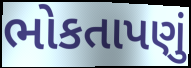
ભોકતાપણું